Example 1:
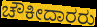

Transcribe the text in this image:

ಚೌಕೀದಾರರು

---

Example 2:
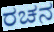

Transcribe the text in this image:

ರಚನ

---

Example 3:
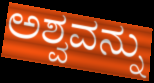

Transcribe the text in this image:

ಅಶ್ವವನ್ನು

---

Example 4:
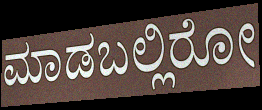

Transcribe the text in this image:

ಮಾಡಬಲ್ಲಿರೋ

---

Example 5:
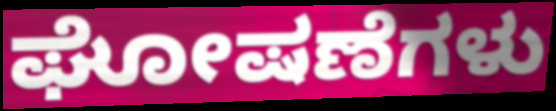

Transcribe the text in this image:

ಘೋಷಣೆಗಳು